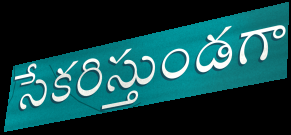
సేకరిస్తుండగా